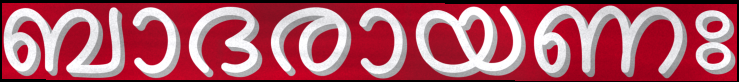
ബാദരായണഃ